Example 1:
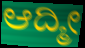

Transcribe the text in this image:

ಆದ್ಮೀ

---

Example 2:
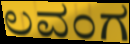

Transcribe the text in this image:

ಲವಂಗ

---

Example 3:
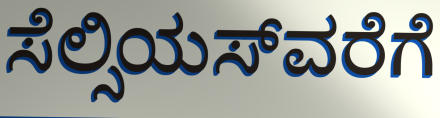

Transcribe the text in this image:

ಸೆಲ್ಸಿಯಸ್‍ವರೆಗೆ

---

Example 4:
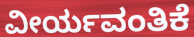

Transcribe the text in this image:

ವೀರ್ಯವಂತಿಕೆ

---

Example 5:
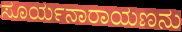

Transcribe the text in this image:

ಸೂರ್ಯನಾರಾಯಣನು